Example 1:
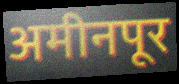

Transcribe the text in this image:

अमीनपूर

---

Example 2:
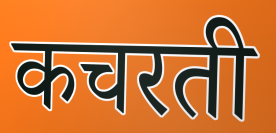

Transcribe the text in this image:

कचरती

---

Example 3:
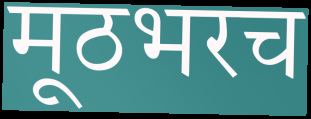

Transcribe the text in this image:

मूठभरच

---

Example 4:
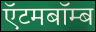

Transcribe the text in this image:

ऍटमबॉम्ब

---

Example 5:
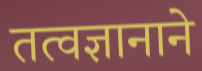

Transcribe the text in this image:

तत्वज्ञानाने